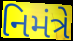
નિમંત્રે